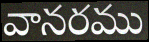
వానరము